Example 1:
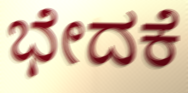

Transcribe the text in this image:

ಭೇದಕೆ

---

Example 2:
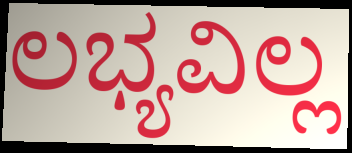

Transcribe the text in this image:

ಲಭ್ಯವಿಲ್ಲ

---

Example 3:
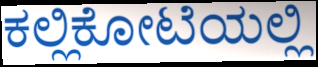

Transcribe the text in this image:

ಕಲ್ಲಿಕೋಟೆಯಲ್ಲಿ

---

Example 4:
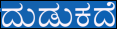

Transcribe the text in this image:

ದುಡುಕದೆ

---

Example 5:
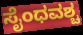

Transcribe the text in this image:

ಸೈಂಧವಶ್ಚ